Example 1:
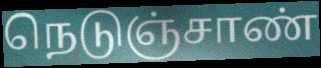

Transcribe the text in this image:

நெடுஞ்சாண்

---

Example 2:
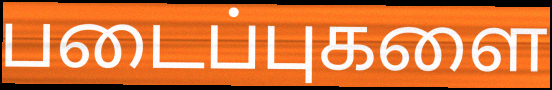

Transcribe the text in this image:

படைப்புகளை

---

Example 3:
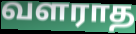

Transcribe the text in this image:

வளராத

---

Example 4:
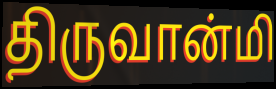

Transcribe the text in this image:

திருவான்மி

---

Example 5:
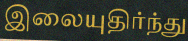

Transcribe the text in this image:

இலையுதிர்ந்து